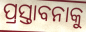
ପ୍ରସ୍ତାବନାକୁ